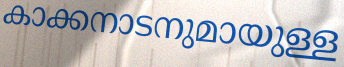
കാക്കനാടനുമായുള്ള